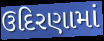
ઉદિરણામાં